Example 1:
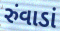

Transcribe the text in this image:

રુંવાડાં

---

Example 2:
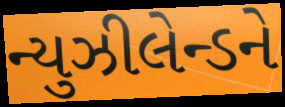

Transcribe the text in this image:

ન્યુઝીલેન્ડને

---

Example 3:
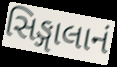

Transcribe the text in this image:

સિઙ્ગાલાનં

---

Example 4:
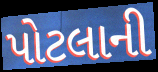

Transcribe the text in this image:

પોટલાની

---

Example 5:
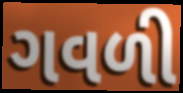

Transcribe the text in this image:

ગવળી